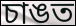
চাঙত